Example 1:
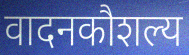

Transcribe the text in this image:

वादनकौशल्य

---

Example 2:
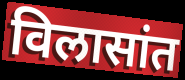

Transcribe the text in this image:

विलासांत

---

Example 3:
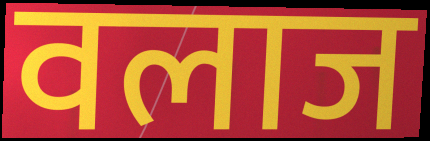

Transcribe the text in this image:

वलाज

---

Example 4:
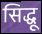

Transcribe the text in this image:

सिद्धू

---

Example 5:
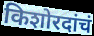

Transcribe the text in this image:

किशोरदांचं